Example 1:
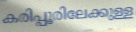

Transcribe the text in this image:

കരിപ്പൂരിലേക്കുള്ള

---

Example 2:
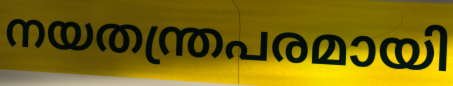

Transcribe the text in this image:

നയതന്ത്രപരമായി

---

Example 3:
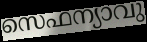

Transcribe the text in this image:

സെഫന്യാവു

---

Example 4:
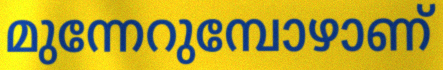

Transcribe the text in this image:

മുന്നേറുമ്പോഴാണ്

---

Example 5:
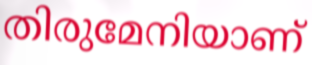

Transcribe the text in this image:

തിരുമേനിയാണ്